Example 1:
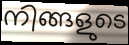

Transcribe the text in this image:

നിങ്ങളുടെ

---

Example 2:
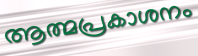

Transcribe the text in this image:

ആത്മപ്രകാശനം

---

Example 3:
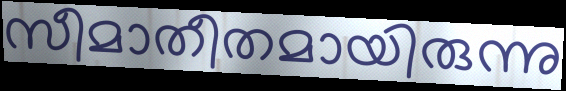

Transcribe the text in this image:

സീമാതീതമായിരുന്നു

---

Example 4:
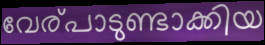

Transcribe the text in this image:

വേര്പാടുണ്ടാക്കിയ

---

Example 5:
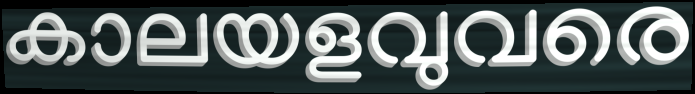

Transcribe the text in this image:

കാലയളവുവരെ